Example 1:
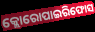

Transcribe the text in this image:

କ୍ଲୋରୋପାଇରିଫୋସ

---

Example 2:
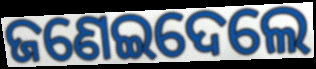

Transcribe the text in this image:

ଜଣେଇଦେଲେ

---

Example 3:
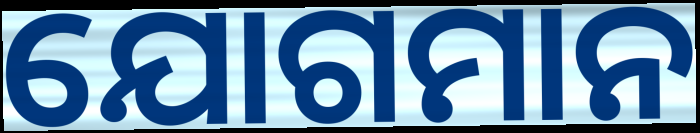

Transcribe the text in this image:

ଯୋଗମାନ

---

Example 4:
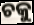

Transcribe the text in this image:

ଚକୁ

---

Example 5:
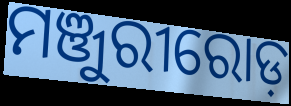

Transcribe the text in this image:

ମଞ୍ଜୁରୀରୋଡ଼